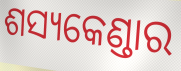
ଶସ୍ୟକେଣ୍ଡାର